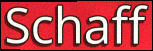
Schaff